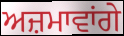
ਅਜ਼ਮਾਵਾਂਗੇ